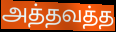
அத்தவத்த